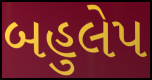
બહુલેપ